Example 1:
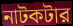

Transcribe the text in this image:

নাটকটার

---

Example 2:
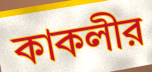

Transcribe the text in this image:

কাকলীর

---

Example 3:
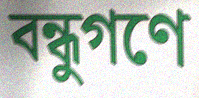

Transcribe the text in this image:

বন্ধুগণে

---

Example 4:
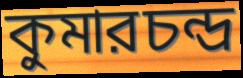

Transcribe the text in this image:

কুমারচন্দ্র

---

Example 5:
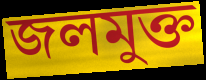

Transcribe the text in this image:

জলমুক্ত